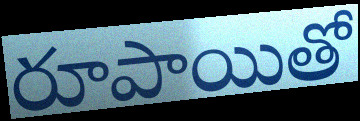
రూపాయితో